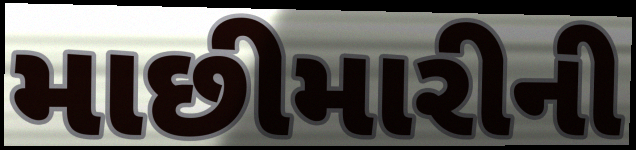
માછીમારીની